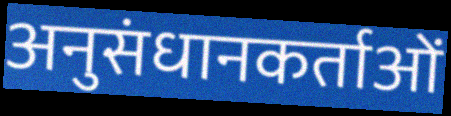
अनुसंधानकर्ताओं